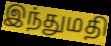
இந்துமதி